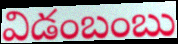
విడంబంబు